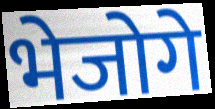
भेजोगे